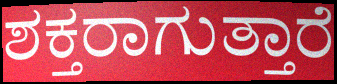
ಶಕ್ತರಾಗುತ್ತಾರೆ